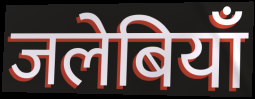
जलेबियाँ